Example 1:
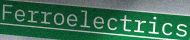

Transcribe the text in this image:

Ferroelectrics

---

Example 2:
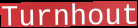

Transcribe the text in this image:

Turnhout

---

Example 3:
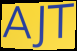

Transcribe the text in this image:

AJT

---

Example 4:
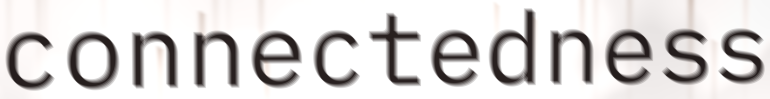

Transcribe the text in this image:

connectedness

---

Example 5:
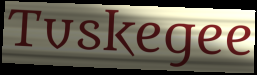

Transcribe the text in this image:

Tuskegee